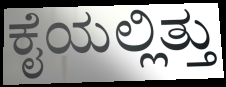
ಕೈಯಲ್ಲಿತ್ತು